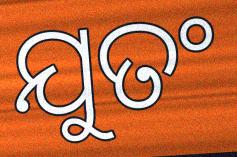
ଯୁତଂ